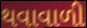
થવાવાળી